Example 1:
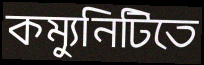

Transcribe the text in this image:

কম্যুনিটিতে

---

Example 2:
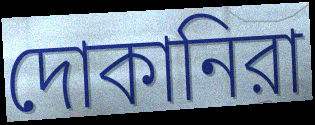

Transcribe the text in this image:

দোকানিরা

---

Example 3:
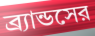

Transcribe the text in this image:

ব্র্যান্ডসের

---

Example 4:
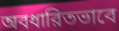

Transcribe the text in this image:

অবধারিতভাবে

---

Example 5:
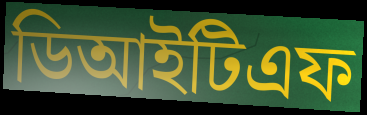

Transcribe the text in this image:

ডিআইটিএফ